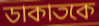
ডাকাতকে